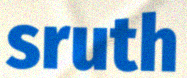
sruth